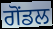
ਗੋਂਡਲ